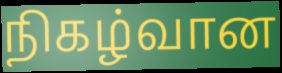
நிகழ்வான